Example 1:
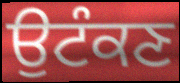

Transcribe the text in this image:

ਉਟੰਕਣ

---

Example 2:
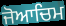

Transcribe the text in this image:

ਜੋਆਚਿਮ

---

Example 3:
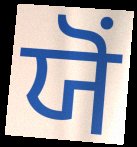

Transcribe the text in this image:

ਯੋਂ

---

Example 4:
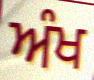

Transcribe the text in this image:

ਅੰਖ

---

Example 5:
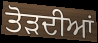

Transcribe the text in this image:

ਤੋੜਦੀਆਂ